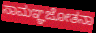
ಸಾಮಞ್ಞಜೋತನಾ